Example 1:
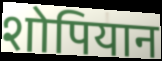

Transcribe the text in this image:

शोपियान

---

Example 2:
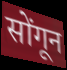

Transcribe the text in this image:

सोंगून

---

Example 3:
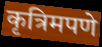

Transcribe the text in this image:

कृत्रिमपणे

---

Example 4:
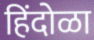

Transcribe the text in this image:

हिंदोळा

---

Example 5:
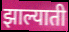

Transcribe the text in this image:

झाल्याती